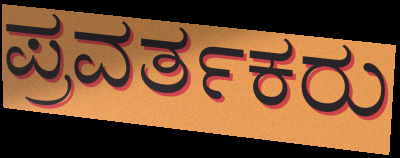
ಪ್ರವರ್ತಕರು